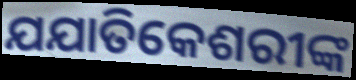
ଯଯାତିକେଶରୀଙ୍କ